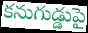
కనుగుడ్డుపై